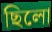
ছিলো